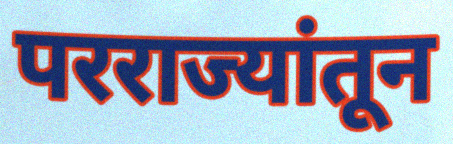
परराज्यांतून